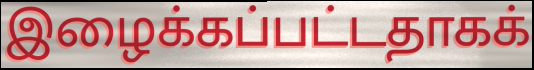
இழைக்கப்பட்டதாகக்